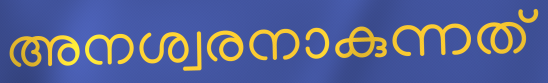
അനശ്വരനാകുന്നത്